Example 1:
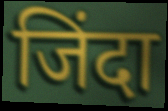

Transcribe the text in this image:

जिंदा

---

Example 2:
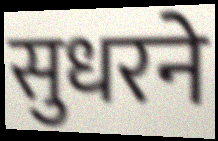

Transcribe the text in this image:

सुधरने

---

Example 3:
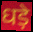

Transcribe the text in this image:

धड़े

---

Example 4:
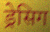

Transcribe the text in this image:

ड्रेसिग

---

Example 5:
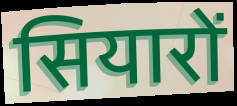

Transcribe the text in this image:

सियारों